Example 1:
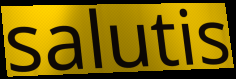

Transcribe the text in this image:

salutis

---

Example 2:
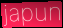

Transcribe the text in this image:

japun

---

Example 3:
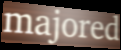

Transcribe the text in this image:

majored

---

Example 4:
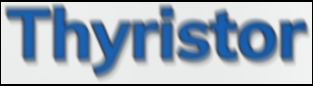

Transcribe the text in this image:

Thyristor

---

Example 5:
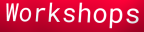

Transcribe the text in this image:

Workshops